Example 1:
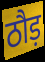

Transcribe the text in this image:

ठौड़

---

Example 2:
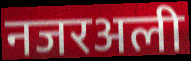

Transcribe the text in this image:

नजरअली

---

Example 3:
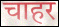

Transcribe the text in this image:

चाहर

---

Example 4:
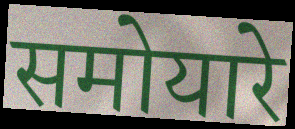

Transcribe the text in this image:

समोयारे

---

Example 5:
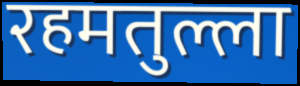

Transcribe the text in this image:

रहमतुल्ला